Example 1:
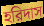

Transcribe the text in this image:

হরিদাস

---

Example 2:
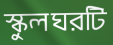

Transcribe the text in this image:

স্কুলঘরটি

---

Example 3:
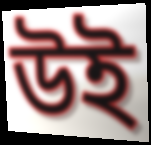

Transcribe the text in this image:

উই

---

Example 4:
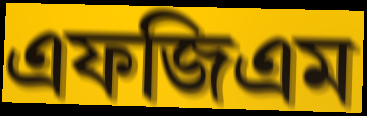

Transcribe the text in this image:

এফজিএম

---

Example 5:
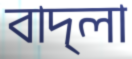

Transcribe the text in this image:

বাদ্‌লা